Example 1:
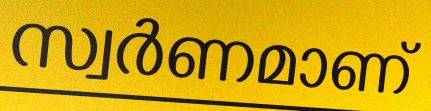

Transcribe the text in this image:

സ്വർണമാണ്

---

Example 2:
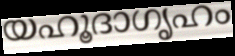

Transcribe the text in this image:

യഹൂദാഗൃഹം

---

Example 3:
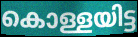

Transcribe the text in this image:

കൊള്ളയിട്ട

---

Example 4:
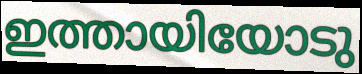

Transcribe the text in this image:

ഇത്തായിയോടു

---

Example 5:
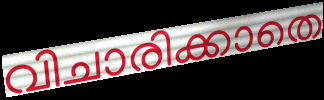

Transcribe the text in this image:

വിചാരിക്കാതെ